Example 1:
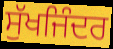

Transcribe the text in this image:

ਸੁੱਖਜਿੰਦਰ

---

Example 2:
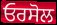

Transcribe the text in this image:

ਓਰਸੋਲ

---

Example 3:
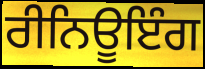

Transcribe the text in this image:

ਰੀਨਿਊਇੰਗ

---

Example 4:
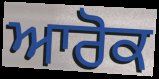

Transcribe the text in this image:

ਆਰੋਕ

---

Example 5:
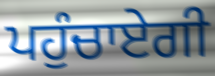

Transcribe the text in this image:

ਪਹੁੰਚਾਏਗੀ